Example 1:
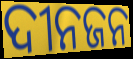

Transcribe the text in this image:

ଦୀନଜନ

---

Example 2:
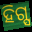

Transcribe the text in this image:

ହିଗ୍ସ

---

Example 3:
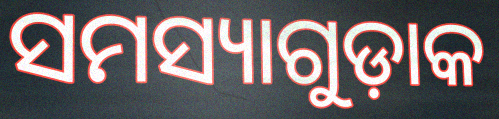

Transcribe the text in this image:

ସମସ୍ୟାଗୁଡ଼ାକ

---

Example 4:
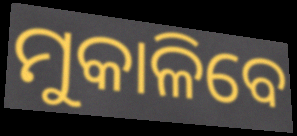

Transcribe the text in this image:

ମୁକାଳିବେ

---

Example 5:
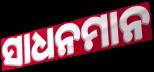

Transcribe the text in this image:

ସାଧନମାନ